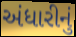
અંધારીનું